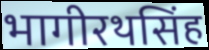
भागीरथसिंह